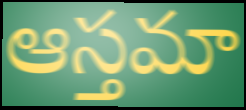
ఆస్తమా